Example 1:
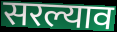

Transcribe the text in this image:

सरल्याव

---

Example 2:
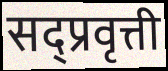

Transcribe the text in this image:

सद्प्रवृत्ती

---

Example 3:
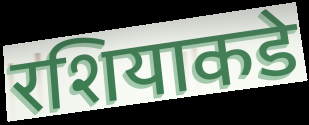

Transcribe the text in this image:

रशियाकडे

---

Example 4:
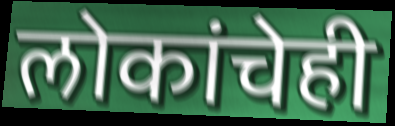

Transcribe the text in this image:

लोकांचेही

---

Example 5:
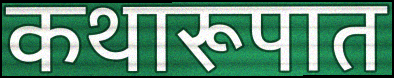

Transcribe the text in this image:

कथारूपात